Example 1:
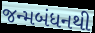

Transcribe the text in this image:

જન્મબંધનથી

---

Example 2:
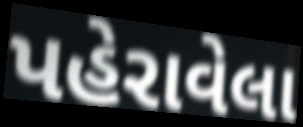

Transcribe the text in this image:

પહેરાવેલા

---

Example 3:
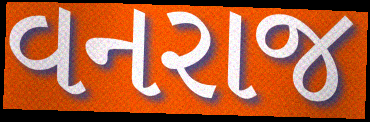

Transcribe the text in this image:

વનરાજ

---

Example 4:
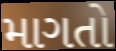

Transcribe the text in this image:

માગતો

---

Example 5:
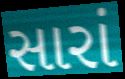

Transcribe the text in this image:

સારાં